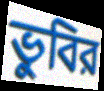
ভুবির